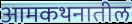
आमकथनातील